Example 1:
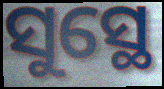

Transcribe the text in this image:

ସୁସ୍ଥେ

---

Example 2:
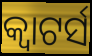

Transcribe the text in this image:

କ୍ଵାଟର୍ସ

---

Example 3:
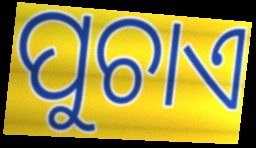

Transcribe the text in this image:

ପୁଚାଏ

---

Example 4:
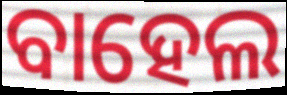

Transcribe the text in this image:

ବାହେଲ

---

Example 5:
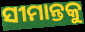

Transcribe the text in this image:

ସୀମାନ୍ତକୁ